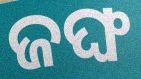
ଜଙ୍ଘ